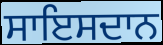
ਸਾਇਸਦਾਨ